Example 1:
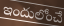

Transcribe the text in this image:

ఇందులోంచే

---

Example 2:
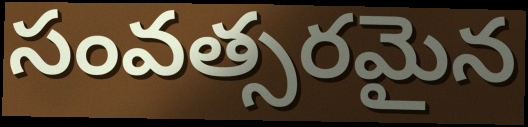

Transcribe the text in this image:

సంవత్సరమైన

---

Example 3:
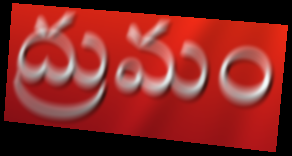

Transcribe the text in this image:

ద్రుమం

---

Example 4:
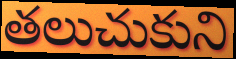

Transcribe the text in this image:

తలుచుకుని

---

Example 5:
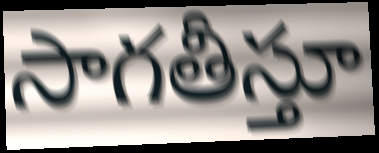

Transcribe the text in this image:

సాగతీస్తూ